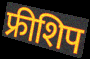
फ्रीशिप